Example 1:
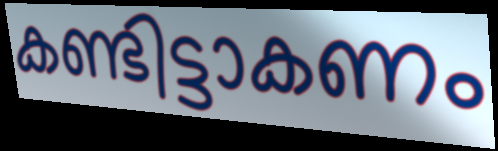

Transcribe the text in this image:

കണ്ടിട്ടാകണം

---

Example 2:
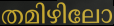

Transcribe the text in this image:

തമിഴിലോ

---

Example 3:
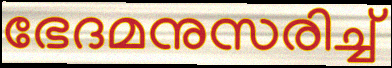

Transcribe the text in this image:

ഭേദമനുസരിച്ച്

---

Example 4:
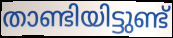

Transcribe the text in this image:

താണ്ടിയിട്ടുണ്ട്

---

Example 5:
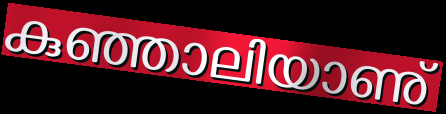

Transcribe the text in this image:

കുഞ്ഞാലിയാണു്